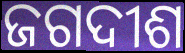
ଜଗଦୀଶ